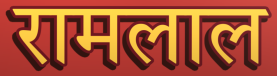
रामलाल